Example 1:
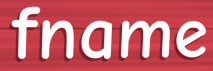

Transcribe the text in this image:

fname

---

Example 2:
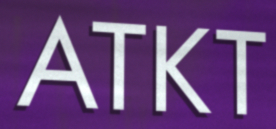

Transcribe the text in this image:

ATKT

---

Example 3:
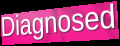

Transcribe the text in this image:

Diagnosed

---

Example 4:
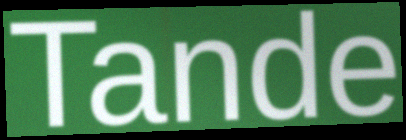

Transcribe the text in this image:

Tande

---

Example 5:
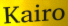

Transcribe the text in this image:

Kairo